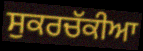
ਸੁਕਰਚੱਕੀਆ